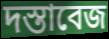
দস্তাবেজ